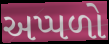
અપ્પળો